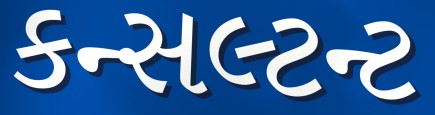
કન્સલ્ટન્ટ